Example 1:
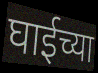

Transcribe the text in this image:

घाईच्या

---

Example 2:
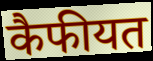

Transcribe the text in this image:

कैफीयत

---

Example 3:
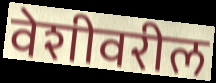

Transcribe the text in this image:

वेशीवरील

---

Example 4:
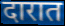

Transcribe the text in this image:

दारात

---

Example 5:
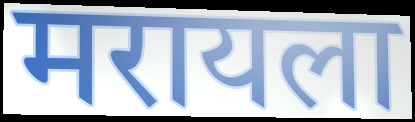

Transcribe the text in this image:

मरायला